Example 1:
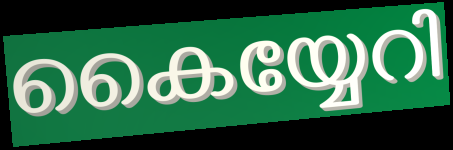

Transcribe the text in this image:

കൈയ്യേറി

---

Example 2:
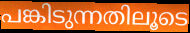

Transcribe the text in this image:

പങ്കിടുന്നതിലൂടെ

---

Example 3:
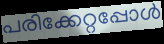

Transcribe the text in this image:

പരിക്കേറ്റപ്പോൾ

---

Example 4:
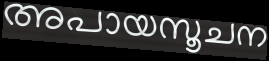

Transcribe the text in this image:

അപായസൂചന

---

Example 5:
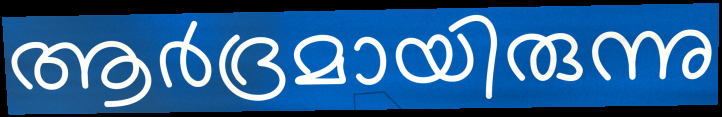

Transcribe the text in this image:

ആർദ്രമായിരുന്നു